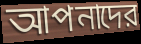
আপনাদের